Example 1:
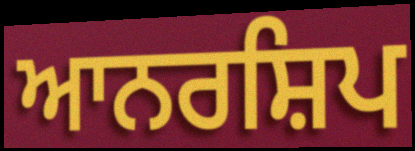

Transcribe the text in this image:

ਆਨਰਸ਼ਿਪ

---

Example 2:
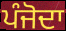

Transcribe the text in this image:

ਪੰਜੋਦਾ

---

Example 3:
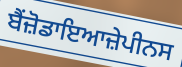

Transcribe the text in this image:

ਬੈਂਜ਼ੋਡਾਇਆਜ਼ੇਪੀਨਸ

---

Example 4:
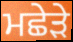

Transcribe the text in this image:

ਮਛੇੜੇ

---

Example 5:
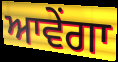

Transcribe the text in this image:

ਆਵੇਂਗਾ